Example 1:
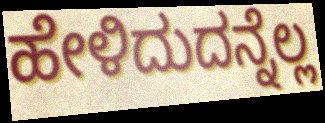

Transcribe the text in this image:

ಹೇಳಿದುದನ್ನೆಲ್ಲ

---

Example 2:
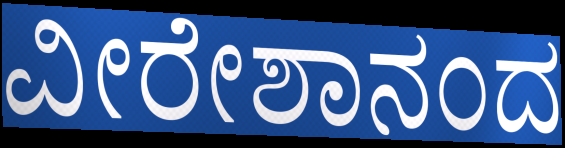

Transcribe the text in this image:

ವೀರೇಶಾನಂದ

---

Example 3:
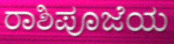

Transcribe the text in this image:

ರಾಶಿಪೂಜೆಯ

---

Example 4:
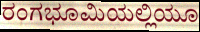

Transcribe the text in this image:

ರಂಗಭೂಮಿಯಲ್ಲಿಯೂ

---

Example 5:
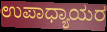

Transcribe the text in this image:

ಉಪಾಧ್ಯಾಯರ